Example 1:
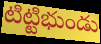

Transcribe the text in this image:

టిట్టిభుండు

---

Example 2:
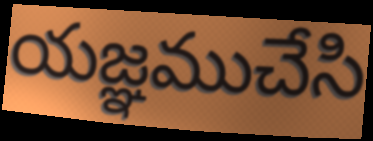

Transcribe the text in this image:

యజ్ఞముచేసి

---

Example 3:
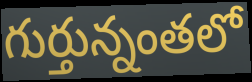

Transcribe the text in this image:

గుర్తున్నంతలో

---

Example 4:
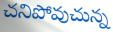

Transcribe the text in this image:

చనిపోవుచున్న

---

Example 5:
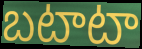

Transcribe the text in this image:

బటాటా